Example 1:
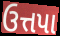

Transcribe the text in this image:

ઉત્તપા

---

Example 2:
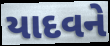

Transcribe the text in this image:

યાદવને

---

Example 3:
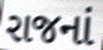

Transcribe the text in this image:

રાજનાં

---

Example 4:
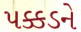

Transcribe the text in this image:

પક્કડને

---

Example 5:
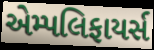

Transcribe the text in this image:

એમ્પલિફાયર્સ